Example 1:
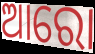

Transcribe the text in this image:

ଆରୋ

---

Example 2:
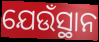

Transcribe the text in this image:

ଯେଉଁସ୍ଥାନ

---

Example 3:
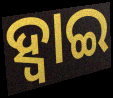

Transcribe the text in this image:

ହ୍ଵାଇ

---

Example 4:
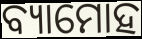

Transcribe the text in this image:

ବ୍ୟାମୋହ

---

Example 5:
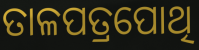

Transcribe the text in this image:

ତାଳପତ୍ରପୋଥି